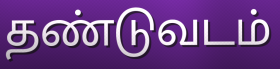
தண்டுவடம்